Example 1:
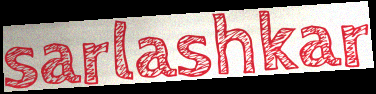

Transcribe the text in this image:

sarlashkar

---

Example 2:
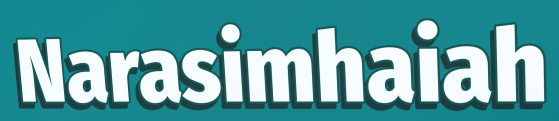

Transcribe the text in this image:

Narasimhaiah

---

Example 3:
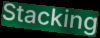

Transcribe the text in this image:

Stacking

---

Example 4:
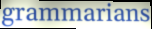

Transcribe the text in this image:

grammarians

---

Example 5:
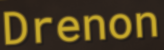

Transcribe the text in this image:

Drenon